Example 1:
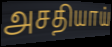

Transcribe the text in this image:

அசதியாய்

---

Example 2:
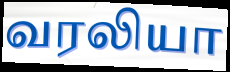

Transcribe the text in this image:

வரலியா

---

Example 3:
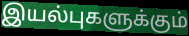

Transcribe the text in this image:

இயல்புகளுக்கும்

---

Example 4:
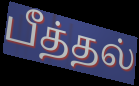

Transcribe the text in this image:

பீத்தல்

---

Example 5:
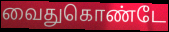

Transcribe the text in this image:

வைதுகொண்டே